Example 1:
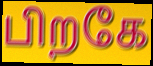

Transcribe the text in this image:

பிறகே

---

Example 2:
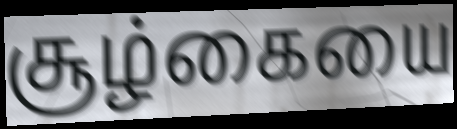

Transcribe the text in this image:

சூழ்கையை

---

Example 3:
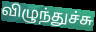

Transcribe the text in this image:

விழுந்துச்சு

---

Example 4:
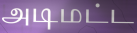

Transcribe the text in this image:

அடிமட்ட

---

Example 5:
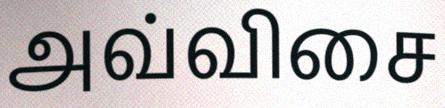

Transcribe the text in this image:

அவ்விசை